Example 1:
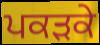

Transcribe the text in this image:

ਪਕੜਕੇ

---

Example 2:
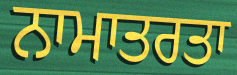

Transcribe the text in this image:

ਨਾਮਾਤਰਤਾ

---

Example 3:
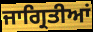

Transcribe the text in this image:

ਜਾਗ੍ਰਿਤੀਆਂ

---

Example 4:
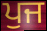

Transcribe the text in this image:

ਪੁਜ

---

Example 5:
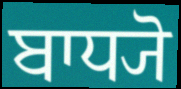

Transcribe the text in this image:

ਬਾਧ੍ਯੋ